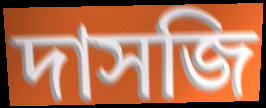
দাসজি